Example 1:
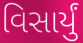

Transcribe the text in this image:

વિસાર્યું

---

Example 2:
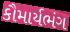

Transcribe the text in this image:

કૌમાર્યભંગ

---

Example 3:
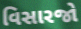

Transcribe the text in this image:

વિસારજો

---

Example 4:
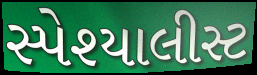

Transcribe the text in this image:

સ્પેશ્યાલીસ્ટ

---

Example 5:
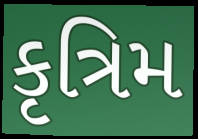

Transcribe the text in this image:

કૃત્રિમ